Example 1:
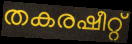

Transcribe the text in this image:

തകരഷീറ്റ്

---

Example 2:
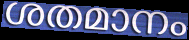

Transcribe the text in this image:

ശതമാനം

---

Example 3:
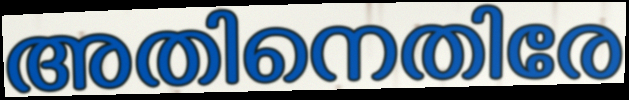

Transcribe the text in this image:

അതിനെതിരേ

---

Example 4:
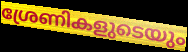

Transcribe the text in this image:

ശ്രേണികളുടെയും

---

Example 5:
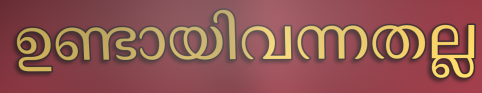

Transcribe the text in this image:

ഉണ്ടായിവന്നതല്ല